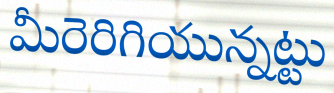
మీరెరిగియున్నట్టు